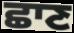
ਛਾਣ